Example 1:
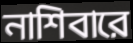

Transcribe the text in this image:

নাশিবারে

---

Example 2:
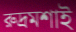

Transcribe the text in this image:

রুদ্রমশাই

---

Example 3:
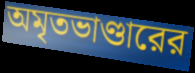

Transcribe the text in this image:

অমৃতভাণ্ডারের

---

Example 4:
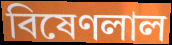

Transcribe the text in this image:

বিষেণলাল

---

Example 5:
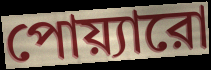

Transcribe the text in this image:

পোয়্যারো